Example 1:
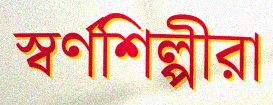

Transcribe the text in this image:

স্বর্ণশিল্পীরা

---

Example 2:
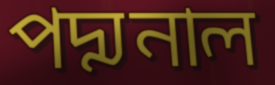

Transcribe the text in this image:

পদ্মনাল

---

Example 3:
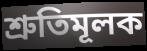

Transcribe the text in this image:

শ্রুতিমূলক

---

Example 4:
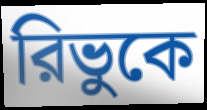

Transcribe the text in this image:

রিভুকে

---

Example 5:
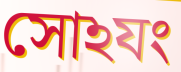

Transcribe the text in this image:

সোঽযং